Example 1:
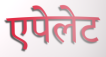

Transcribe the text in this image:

एपेलेट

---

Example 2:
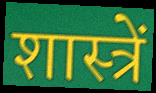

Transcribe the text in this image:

शास्त्रें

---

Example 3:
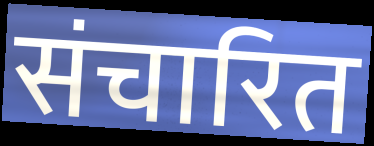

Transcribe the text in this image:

संचारित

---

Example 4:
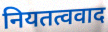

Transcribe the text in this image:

नियतत्ववाद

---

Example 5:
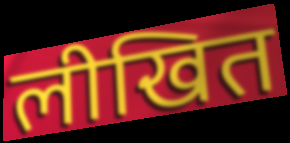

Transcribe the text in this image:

लीखित